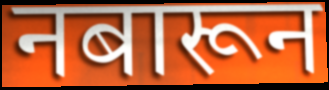
नबारून